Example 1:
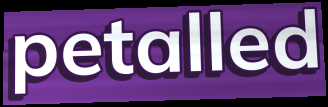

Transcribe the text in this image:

petalled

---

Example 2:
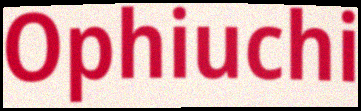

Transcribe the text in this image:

Ophiuchi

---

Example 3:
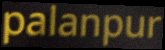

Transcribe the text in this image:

palanpur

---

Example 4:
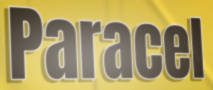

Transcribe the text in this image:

Paracel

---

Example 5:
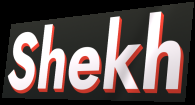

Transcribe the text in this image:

Shekh